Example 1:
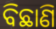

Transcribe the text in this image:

ବିଛାଣି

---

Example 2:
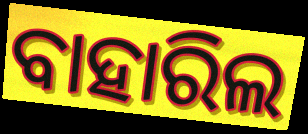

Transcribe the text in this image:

ବାହାରିଲ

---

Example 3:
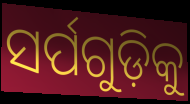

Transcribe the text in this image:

ସର୍ପଗୁଡ଼ିକୁ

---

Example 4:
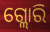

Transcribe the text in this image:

ଗ୍ଲୋରି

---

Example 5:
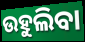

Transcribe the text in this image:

ଉହୁଲିବା